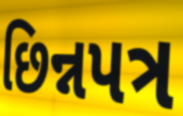
છિન્નપત્ર